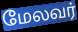
மேலவர்